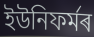
ইউনিফৰ্মৰ